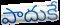
పాదుకే